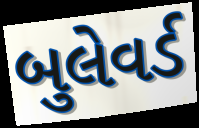
બુલેવર્ડ